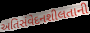
અતિસંવેદનશીલતાની